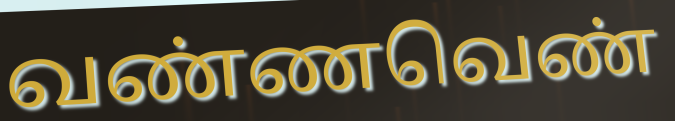
வண்ணவெண்